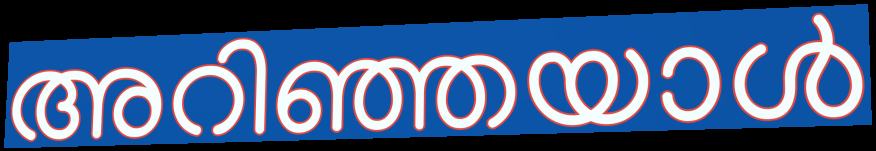
അറിഞ്ഞയാൾ